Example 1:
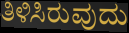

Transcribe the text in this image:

ತಿಳಿಸಿರುವುದು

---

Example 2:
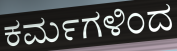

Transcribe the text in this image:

ಕರ್ಮಗಳಿಂದ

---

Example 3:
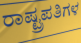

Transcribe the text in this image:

ರಾಷ್ಟ್ರಪತಿಗಳ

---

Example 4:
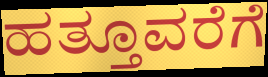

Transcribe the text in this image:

ಹತ್ತೂವರೆಗೆ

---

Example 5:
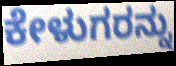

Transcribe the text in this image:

ಕೇಳುಗರನ್ನು